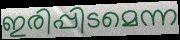
ഇരിപ്പിടമെന്ന